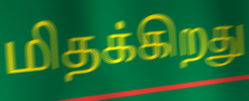
மிதக்கிறது